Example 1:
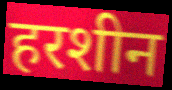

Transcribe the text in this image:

हरशीन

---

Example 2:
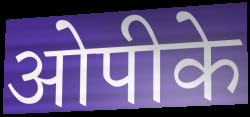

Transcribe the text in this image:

ओपीके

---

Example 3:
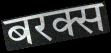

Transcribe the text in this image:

बरक्स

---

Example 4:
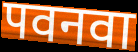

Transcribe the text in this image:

पवनवा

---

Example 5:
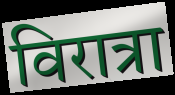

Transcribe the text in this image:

विरात्रा